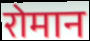
रोमान